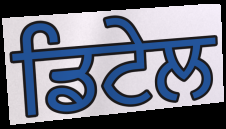
ਡਿਟੇਲ